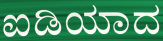
ಐಡಿಯಾದ